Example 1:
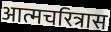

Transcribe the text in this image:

आत्मचरित्रास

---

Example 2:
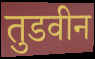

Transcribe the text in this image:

तुडवीन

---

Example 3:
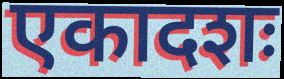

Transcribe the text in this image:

एकादशः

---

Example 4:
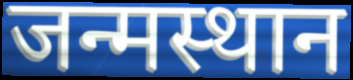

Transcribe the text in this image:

जन्मस्थान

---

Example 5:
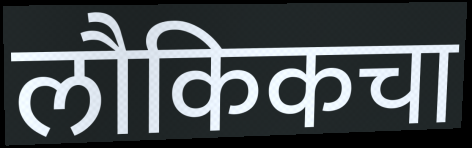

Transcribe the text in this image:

लौकिकचा